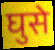
घुसे